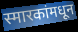
स्मारकांमधून